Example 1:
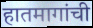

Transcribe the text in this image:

हातमागांची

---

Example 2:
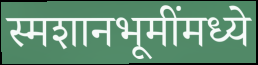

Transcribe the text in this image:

स्मशानभूमींमध्ये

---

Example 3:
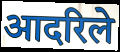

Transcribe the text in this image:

आदरिले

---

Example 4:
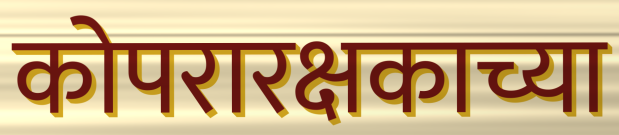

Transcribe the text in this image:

कोपरारक्षकाच्या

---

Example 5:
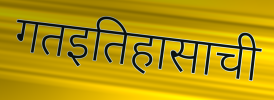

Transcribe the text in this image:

गतइतिहासाची